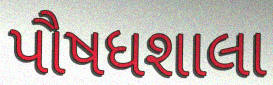
પૌષધશાલા